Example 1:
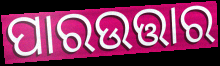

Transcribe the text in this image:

ପାରଉତ୍ତାର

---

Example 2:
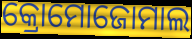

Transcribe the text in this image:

କ୍ରୋମୋଜୋମାଲ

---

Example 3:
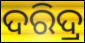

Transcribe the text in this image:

ଦରିଦ୍ର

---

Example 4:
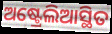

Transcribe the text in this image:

ଅଷ୍ଟ୍ରେଲିଆସ୍ଥିତ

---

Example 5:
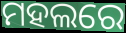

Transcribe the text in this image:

ମହଲରେ